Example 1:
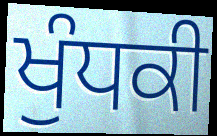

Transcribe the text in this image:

ਖੁੰਧਕੀ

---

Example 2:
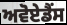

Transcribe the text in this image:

ਅਵੋਏਡੈਂਸ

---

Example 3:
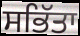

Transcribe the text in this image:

ਸਭਿੱਤਾ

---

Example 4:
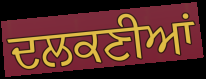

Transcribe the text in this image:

ਦਲਕਣੀਆਂ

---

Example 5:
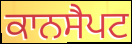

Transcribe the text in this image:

ਕਾਨਸੈਪਟ